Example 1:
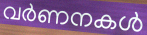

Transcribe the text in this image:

വർണനകൾ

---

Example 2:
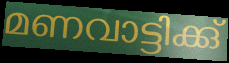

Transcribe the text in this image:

മണവാട്ടിക്കു്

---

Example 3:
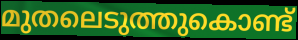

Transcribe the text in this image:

മുതലെടുത്തുകൊണ്ട്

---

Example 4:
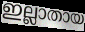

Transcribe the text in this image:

ഇല്ലാതായ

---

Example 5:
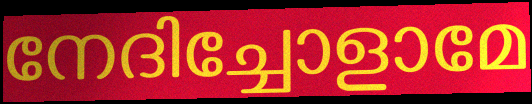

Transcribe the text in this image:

നേദിച്ചോളാമേ